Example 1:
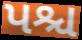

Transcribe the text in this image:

પશ્ચ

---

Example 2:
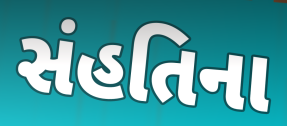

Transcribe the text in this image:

સંહતિના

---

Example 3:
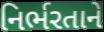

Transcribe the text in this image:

નિર્ભરતાને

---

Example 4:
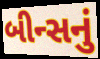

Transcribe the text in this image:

બીન્સનું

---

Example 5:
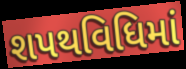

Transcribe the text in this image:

શપથવિધિમાં